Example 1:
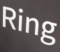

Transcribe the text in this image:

Ring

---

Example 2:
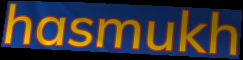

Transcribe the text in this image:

hasmukh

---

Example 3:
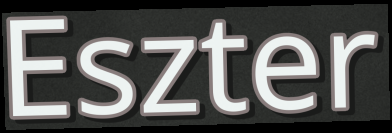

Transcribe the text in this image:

Eszter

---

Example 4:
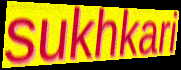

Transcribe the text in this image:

sukhkari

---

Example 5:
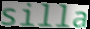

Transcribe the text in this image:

silla